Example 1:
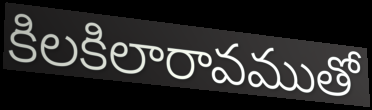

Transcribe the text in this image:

కిలకిలారావముతో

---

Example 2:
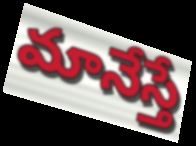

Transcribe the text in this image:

మానేస్తే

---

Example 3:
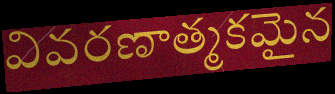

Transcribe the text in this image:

వివరణాత్మకమైన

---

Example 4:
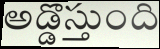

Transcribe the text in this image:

అడ్డొస్తుంది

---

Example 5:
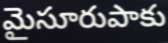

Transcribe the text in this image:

మైసూరుపాకు